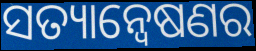
ସତ୍ୟାନ୍ୱେଷଣର